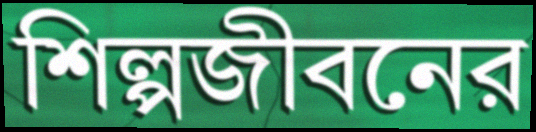
শিল্পজীবনের